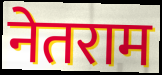
नेतराम